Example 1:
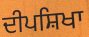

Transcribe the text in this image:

ਦੀਪਸ਼ਿਖਾ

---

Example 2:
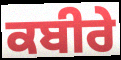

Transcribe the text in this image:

ਕਬੀਰੇ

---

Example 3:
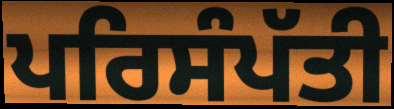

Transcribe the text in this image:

ਪਰਿਸੰਪੱਤੀ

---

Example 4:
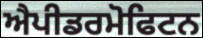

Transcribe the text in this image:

ਐਪੀਡਰਮੋਫਿਟਨ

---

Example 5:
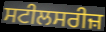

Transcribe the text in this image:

ਸਟੀਲਸਰੀਜ਼